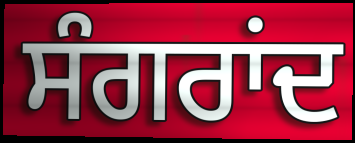
ਸੰਗਰਾਂਦ